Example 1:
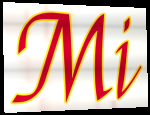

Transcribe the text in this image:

Mi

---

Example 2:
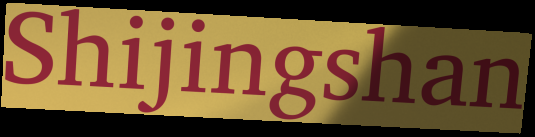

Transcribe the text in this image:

Shijingshan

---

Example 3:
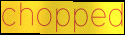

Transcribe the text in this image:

chopped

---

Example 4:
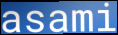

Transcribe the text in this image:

asami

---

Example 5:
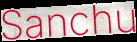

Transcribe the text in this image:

Sanchu